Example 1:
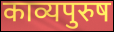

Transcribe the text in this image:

काव्यपुरुष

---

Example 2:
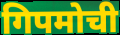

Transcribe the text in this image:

गिपमोची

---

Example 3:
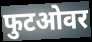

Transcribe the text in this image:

फुटओवर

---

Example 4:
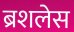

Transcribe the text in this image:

ब्रशलेस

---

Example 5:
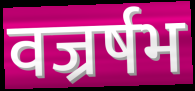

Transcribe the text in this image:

वज्रर्षभ